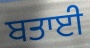
ਬਤਾਈ